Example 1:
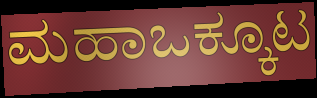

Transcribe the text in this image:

ಮಹಾಒಕ್ಕೂಟ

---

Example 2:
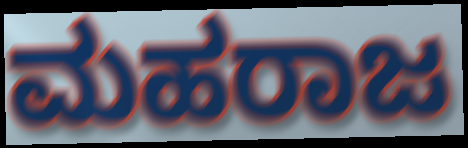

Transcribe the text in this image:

ಮಹರಾಜ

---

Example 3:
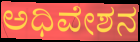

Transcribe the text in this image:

ಅಧಿವೇಶನ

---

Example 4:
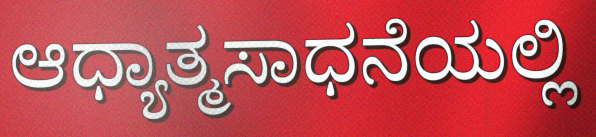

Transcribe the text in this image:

ಆಧ್ಯಾತ್ಮಸಾಧನೆಯಲ್ಲಿ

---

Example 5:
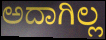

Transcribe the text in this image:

ಅದಾಗಿಲ್ಲ